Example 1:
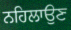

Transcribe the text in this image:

ਨਹਿਲਾਉਣ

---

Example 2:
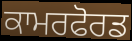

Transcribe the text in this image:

ਕਾਮਰਫੋਰਡ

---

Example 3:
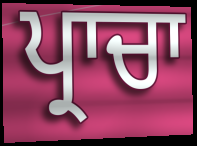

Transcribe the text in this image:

ਪ੍ਰਾਚਾ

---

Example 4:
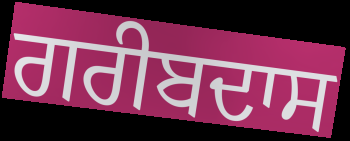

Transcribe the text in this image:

ਗਰੀਬਦਾਸ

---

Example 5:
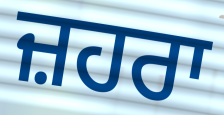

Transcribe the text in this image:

ਜ਼ਹਰਾ